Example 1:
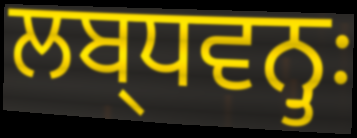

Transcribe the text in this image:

ਲਬ੍ਧਵਨ੍ਤਃ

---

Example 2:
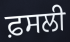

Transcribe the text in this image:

ਫ਼ਸਲੀ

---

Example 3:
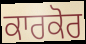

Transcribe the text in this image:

ਕਾਰਕੋਰ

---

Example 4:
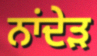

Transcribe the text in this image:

ਨਾਂਦੇੜ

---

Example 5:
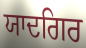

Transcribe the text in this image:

ਯਾਦਗਿਰ